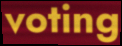
voting